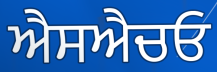
ਐਸਐਚਓ